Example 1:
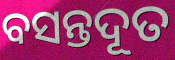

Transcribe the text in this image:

ବସନ୍ତଦୂତ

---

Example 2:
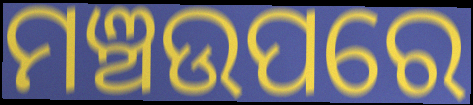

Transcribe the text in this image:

ମଞ୍ଚଉପରେ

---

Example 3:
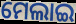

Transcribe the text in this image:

ମେଲାଇ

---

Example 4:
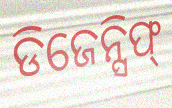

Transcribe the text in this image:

ଡିଜେନ୍ସିଫ୍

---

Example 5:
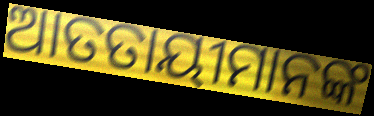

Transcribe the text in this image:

ଆତତାୟୀମାନଙ୍କ